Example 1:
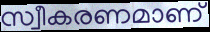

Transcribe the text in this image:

സ്വീകരണമാണ്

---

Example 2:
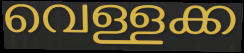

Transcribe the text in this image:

വെള്ളക്ക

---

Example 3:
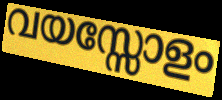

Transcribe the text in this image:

വയസ്സോളം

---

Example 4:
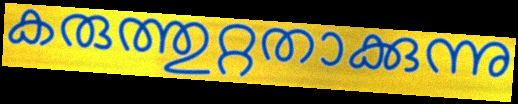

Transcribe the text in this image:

കരുത്തുറ്റതാക്കുന്നു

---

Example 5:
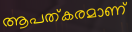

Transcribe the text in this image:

ആപത്കരമാണ്